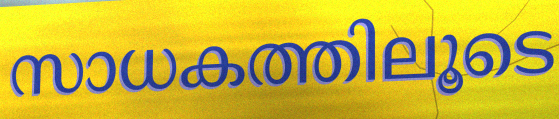
സാധകത്തിലൂടെ